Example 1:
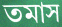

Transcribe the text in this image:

তমাস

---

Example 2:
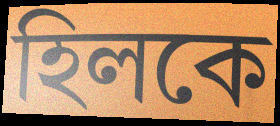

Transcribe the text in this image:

হিলকে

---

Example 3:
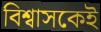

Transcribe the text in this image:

বিশ্বাসকেই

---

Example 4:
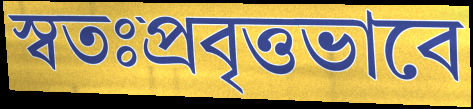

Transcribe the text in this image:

স্বতঃপ্রবৃত্তভাবে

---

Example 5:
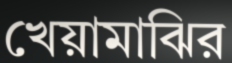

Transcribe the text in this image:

খেয়ামাঝির